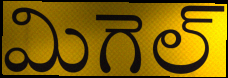
మిగెల్